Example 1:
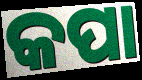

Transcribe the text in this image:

କପା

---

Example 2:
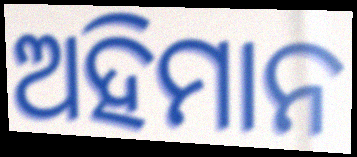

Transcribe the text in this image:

ଅହିମାନ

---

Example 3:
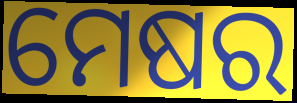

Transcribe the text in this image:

ମେଷର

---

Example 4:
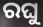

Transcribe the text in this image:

ରଘୁ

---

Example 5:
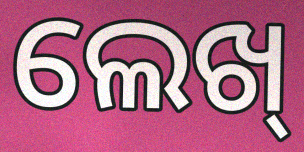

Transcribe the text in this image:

ଲେଖ୍